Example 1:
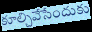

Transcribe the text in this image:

కూల్చివేసేందుకు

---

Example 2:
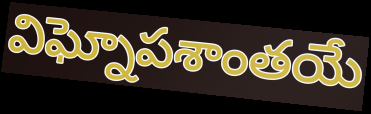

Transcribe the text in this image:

విఘ్నోపశాంతయే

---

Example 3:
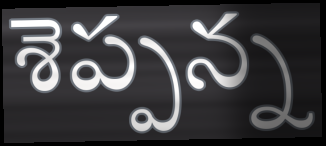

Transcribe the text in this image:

శెప్పన్న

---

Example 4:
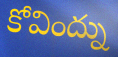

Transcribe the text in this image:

కోవింద్ను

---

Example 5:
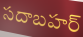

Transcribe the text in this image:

సదాబహర్